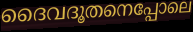
ദൈവദൂതനെപ്പോലെ